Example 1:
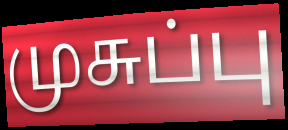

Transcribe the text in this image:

முசுப்பு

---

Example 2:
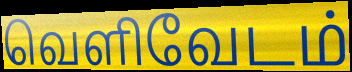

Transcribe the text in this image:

வெளிவேடம்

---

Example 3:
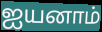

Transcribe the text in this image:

ஐயனாம்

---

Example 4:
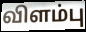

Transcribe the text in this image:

விளம்பு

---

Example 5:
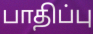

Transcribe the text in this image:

பாதிப்பு